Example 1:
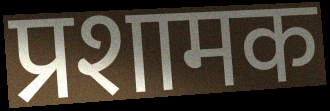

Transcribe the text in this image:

प्रशामक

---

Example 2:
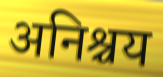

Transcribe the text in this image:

अनिश्चय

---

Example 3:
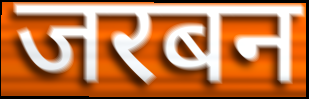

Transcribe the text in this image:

जरबन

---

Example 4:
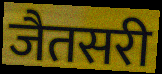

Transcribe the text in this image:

जैतसरी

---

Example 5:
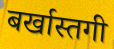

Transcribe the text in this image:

बर्खास्तगी